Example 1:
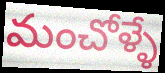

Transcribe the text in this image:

మంచోళ్ళే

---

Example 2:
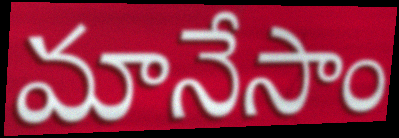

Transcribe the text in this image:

మానేసాం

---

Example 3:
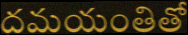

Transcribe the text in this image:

దమయంతితో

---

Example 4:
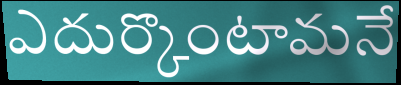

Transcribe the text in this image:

ఎదుర్కొంటామనే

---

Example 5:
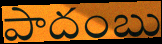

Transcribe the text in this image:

పాదంబు